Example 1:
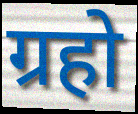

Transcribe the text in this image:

ग्रहो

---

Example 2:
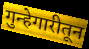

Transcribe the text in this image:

गुन्हेगारीतून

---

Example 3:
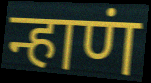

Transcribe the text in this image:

न्हाणं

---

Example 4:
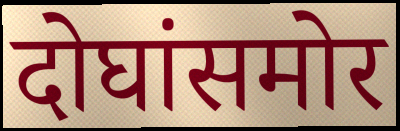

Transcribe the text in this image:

दोघांसमोर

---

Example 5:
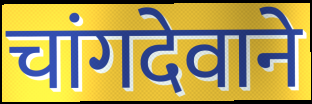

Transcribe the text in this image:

चांगदेवाने